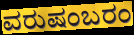
ವರುಷಂಬರಂ